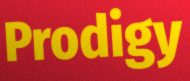
Prodigy